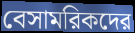
বেসামরিকদের